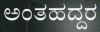
ಅಂತಹದ್ದರ